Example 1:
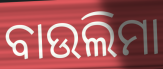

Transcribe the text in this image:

ବାଉଲିମା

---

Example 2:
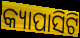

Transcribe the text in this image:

କ୍ୟାପାସିଟି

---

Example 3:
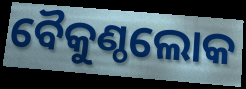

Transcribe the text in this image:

ବୈକୁଣ୍ଠଲୋକ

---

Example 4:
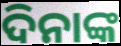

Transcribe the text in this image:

ଦିନାଙ୍କ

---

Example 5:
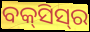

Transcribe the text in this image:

ବକ୍‌ସିସ୍‌ର